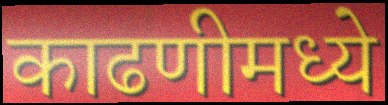
काढणीमध्ये